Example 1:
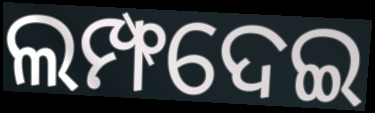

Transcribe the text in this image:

ଲମ୍ଫଦେଇ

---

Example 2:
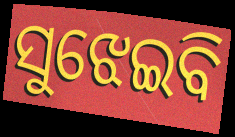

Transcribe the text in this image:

ସୁଝେଇବି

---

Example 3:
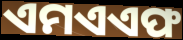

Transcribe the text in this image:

ଏମଏଏଫ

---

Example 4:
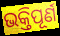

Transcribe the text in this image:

ଭକ୍ତିପୂର୍ଣ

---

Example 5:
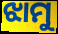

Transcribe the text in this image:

ଝାମୁ